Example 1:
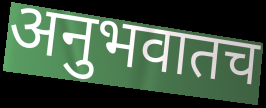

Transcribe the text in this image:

अनुभवातच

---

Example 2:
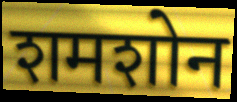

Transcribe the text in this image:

शमशोन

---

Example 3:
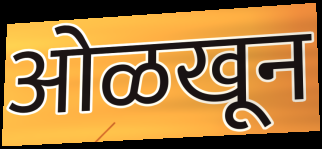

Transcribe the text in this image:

ओळखून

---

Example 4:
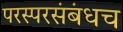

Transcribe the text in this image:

परस्परसंबंधच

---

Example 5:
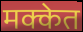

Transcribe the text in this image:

मक्केत